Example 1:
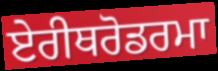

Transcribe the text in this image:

ਏਰੀਥਰੋਡਰਮਾ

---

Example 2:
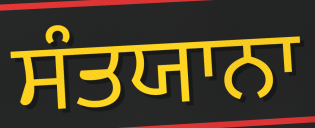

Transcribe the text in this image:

ਸੰਤਯਾਨਾ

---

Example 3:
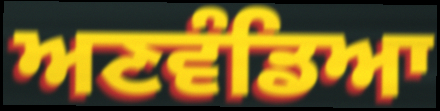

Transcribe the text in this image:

ਅਣਵੰਡਿਆ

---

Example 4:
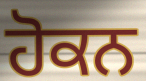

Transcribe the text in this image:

ਹੋਕਨ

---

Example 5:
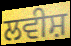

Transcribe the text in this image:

ਲਵੀਸ਼